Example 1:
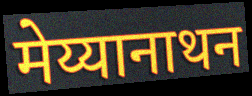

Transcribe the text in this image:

मेय्यानाथन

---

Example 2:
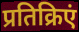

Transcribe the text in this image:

प्रतिक्रिएं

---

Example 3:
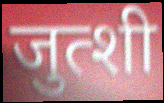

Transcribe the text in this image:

जुत्शी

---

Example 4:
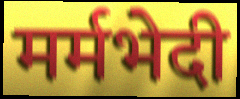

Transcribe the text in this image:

मर्मभेदी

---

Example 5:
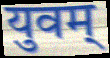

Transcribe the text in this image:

युवम्